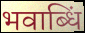
भवाब्धिं